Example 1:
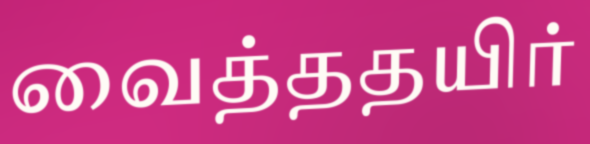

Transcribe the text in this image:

வைத்ததயிர்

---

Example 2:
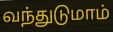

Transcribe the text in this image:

வந்துடுமாம்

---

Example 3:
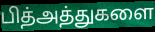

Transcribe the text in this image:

பித்அத்துகளை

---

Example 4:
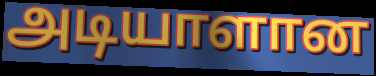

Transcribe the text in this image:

அடியாளான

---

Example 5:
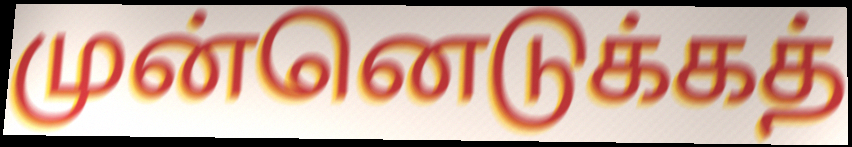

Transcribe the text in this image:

முன்னெடுக்கத்